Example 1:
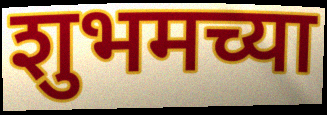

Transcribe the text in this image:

शुभमच्या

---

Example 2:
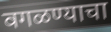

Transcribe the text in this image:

वगळण्याचा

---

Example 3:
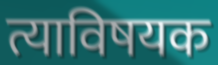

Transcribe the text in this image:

त्याविषयक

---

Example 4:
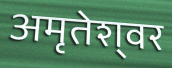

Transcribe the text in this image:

अमृतेश्वर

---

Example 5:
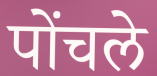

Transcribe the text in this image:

पोंचले